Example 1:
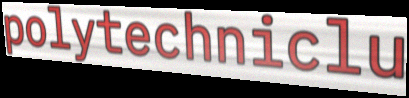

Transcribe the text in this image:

polytechniclu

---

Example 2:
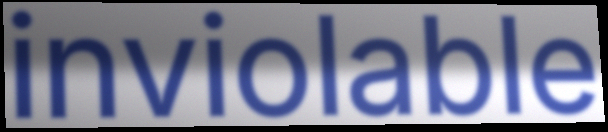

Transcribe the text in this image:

inviolable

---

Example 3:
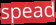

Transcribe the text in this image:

spead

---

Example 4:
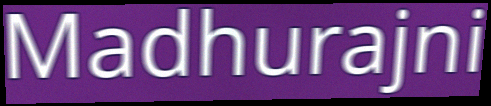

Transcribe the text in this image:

Madhurajni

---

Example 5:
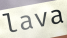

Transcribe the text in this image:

lava